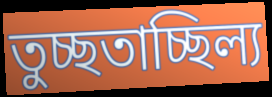
তুচ্ছতাচ্ছিল্য